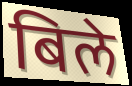
बिले